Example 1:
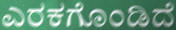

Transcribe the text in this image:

ಎರಕಗೊಂಡಿದೆ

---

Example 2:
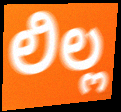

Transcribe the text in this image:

ಲಿಲ್ಲ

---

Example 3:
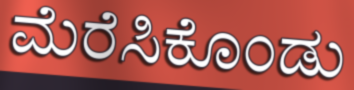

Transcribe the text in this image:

ಮೆರೆಸಿಕೊಂಡು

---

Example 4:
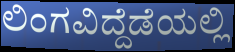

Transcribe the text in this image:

ಲಿಂಗವಿದ್ದೆಡೆಯಲ್ಲಿ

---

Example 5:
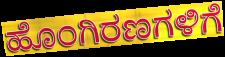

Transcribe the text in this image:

ಹೊಂಗಿರಣಗಳಿಗೆ